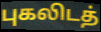
புகலிடத்